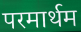
परमार्थम